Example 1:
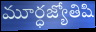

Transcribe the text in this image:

మూర్ధజ్యోతిషి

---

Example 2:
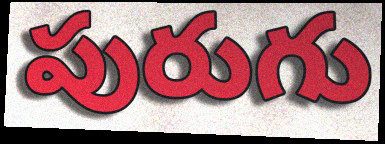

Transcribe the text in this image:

పురుగు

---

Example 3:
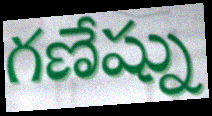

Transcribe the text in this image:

గణేష్ను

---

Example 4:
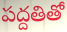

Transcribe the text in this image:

పద్దతితో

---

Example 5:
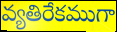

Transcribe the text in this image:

వ్యతిరేకముగా